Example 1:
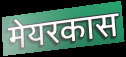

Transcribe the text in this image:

मेयरकास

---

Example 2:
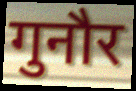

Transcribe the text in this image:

गुनौर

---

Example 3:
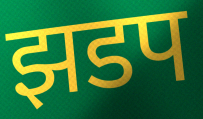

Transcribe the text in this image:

झडप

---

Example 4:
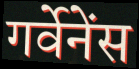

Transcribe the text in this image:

गर्वेनेंस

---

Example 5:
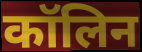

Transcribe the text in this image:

कॉलिन